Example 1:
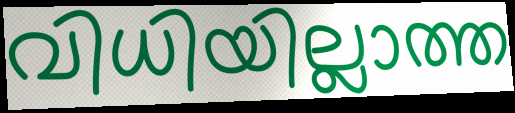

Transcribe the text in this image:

വിധിയില്ലാത്ത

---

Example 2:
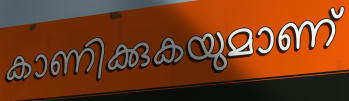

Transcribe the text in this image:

കാണിക്കുകയുമാണ്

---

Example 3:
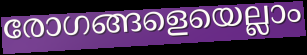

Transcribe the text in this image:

രോഗങ്ങളെയെല്ലാം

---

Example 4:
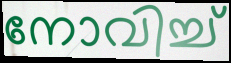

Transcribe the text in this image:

നോവിച്ച്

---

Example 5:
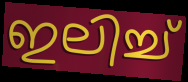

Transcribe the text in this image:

ഇലിച്ച്